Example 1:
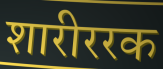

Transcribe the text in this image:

शारीररक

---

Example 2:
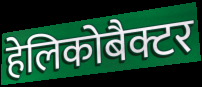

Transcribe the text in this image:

हेलिकोबैक्टर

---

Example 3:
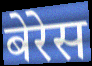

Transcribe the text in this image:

बेरेस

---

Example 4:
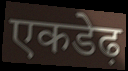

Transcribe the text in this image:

एकडेढ़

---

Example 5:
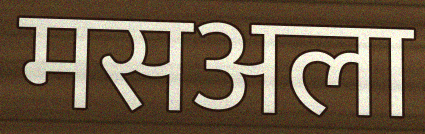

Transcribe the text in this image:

मसअला